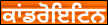
ਕਾਂਡਰੋਇਟਿਨ